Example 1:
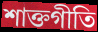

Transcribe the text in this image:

শাক্তগীতি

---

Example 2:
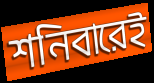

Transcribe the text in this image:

শনিবারেই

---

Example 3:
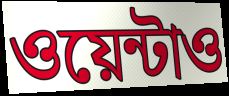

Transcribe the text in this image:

ওয়েন্টাও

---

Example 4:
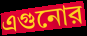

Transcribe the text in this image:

এগুনোর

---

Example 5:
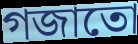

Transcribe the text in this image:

গজাতো